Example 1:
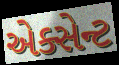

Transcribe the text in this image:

એક્સેન્ટ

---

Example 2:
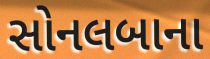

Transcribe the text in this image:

સોનલબાના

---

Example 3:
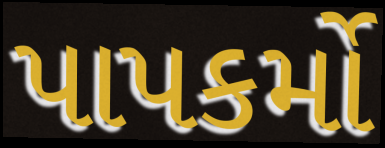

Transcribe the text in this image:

પાપકર્મો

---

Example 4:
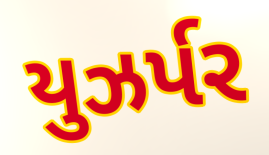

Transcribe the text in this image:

યુઝર્પર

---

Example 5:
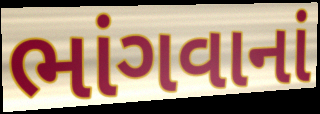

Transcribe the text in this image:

ભાંગવાનાં